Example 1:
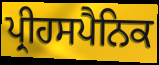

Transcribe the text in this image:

ਪ੍ਰੀਹਸਪੈਨਿਕ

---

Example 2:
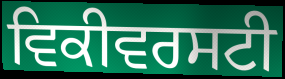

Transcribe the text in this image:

ਵਿਕੀਵਰਸਟੀ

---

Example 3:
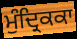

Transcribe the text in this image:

ਮੁੰਦ੍ਰਿਕਕਾ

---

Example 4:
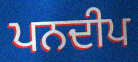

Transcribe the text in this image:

ਪਨਦੀਪ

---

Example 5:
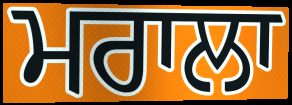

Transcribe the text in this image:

ਮਰਾਲਾ